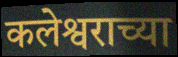
कलेश्वराच्या